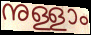
നുള്ളാം